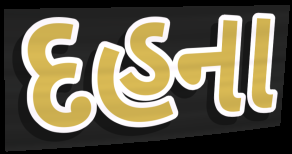
દહના